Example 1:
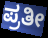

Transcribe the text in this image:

ಪ್ರತೀ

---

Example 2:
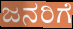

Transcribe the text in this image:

ಜನರಿಗೆ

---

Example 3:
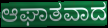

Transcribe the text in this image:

ಆಘಾತವಾದ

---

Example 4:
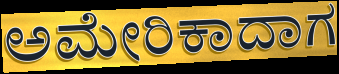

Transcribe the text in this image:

ಅಮೇರಿಕಾದಾಗ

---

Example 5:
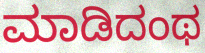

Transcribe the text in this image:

ಮಾಡಿದಂಥ